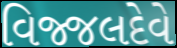
વિજ્જલદેવે